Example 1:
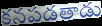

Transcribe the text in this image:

కనపడతాడు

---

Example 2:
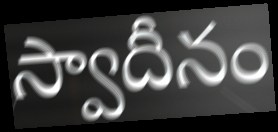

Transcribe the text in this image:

స్వాదీనం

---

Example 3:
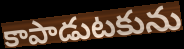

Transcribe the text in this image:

కాపాడుటకును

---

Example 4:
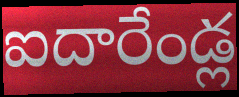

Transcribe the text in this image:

ఐదారేండ్ల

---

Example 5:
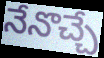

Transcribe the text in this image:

నేనొచ్చే